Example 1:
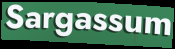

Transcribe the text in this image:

Sargassum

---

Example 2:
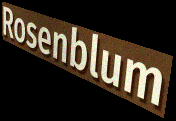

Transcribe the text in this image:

Rosenblum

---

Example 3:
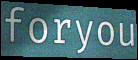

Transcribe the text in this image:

foryou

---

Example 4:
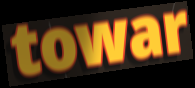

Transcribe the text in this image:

towar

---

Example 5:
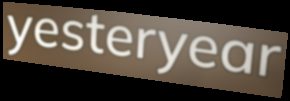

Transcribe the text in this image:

yesteryear